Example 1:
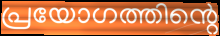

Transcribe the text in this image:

പ്രയോഗത്തിന്റെ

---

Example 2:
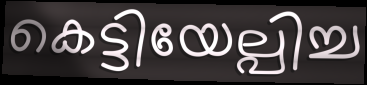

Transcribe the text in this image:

കെട്ടിയേല്പിച്ച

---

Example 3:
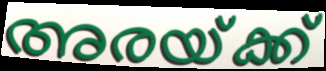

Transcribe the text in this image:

അരയ്‌ക്ക്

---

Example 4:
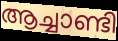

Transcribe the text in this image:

ആച്ചാണ്ടി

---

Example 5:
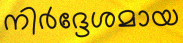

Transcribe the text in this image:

നിർദ്ദേശമായ